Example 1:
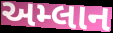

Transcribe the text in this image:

અમ્લાન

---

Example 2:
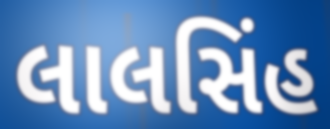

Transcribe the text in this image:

લાલસિંહ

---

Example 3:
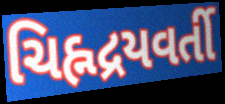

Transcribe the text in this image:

ચિહ્નદ્રયવર્તી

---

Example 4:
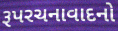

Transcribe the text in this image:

રૂપરચનાવાદનો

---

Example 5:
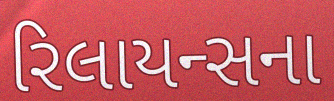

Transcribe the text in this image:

રિલાયન્સના